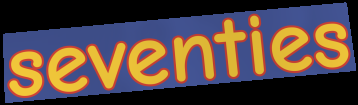
seventies